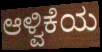
ಆಳ್ವಿಕೆಯ